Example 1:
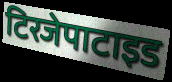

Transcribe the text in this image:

टिरजेपाटाइड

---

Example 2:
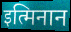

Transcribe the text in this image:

इत्मिनान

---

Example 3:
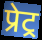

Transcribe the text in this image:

प्रेट्र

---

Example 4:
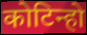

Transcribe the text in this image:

कोटिन्हो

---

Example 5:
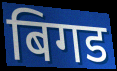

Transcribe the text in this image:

बिगड